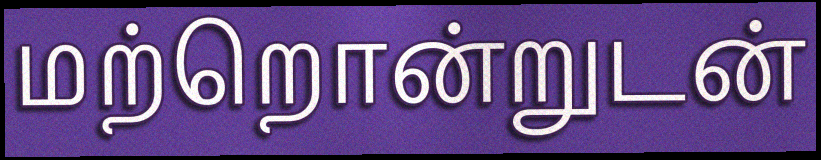
மற்றொன்றுடன்